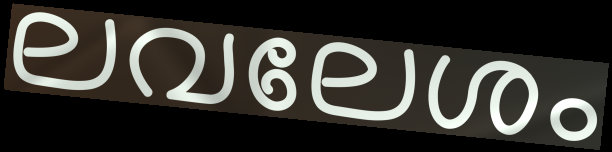
ലവലേശം